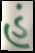
હં